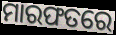
ମାରଫତରେ